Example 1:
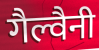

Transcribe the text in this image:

गैल्वैनी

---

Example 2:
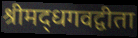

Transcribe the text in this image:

श्रीमद्धगवद्वीता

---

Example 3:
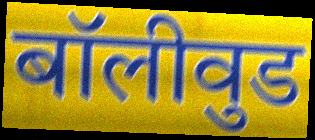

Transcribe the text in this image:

बॉलीवुड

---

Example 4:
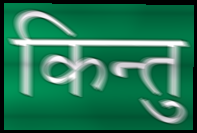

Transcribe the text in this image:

किन्तु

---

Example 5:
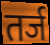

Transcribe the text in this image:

तर्ज